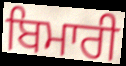
ਬਿਮਾਰੀ